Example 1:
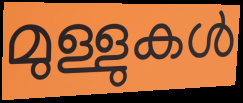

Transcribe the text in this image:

മുള്ളുകൾ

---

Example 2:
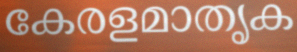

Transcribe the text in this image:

കേരളമാതൃക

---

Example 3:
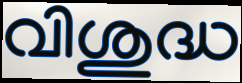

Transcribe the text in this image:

വിശുദ്ധ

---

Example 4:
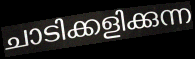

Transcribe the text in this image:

ചാടിക്കളിക്കുന്ന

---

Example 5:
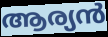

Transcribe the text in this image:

ആര്യൻ